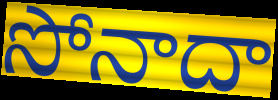
సోనాదా